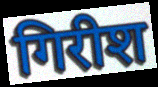
गिरीश